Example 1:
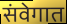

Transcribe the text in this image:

संवेगात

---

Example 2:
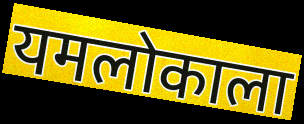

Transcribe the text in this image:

यमलोकाला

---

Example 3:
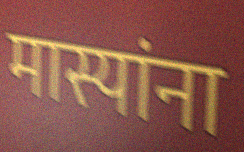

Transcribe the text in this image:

मास्यांना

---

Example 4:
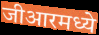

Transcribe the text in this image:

जीआरमध्ये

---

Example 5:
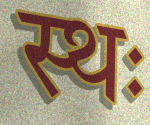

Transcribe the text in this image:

स्थः